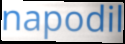
napodil